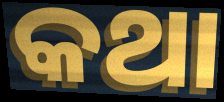
କଥା